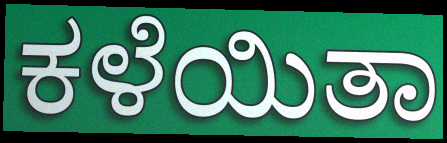
ಕಳೆಯಿತಾ